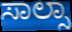
ಸಾಲ್ಸಾ